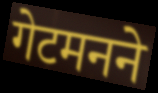
गेटमनने